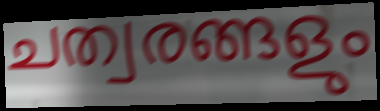
ചത്വരങ്ങളും